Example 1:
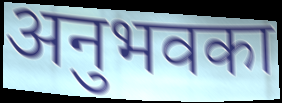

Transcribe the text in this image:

अनुभवका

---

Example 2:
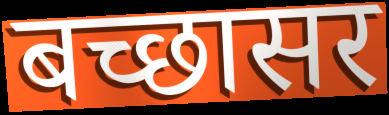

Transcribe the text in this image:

बच्छासर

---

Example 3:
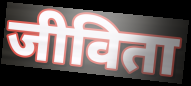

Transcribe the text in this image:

जीविता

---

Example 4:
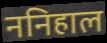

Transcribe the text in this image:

ननिहाल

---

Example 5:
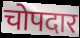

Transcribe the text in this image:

चोपदार